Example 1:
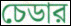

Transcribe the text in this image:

চেডার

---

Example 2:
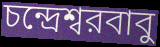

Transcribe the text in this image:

চন্দ্রেশ্বরবাবু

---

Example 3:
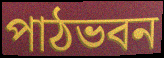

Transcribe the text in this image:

পাঠভবন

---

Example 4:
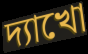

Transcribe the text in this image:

দ্যাখো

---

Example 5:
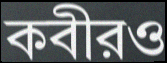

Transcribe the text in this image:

কবীরও